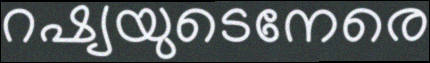
റഷ്യയുടെനേരെ